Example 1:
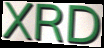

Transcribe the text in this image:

XRD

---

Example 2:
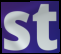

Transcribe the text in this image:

st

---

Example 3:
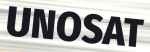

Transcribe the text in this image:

UNOSAT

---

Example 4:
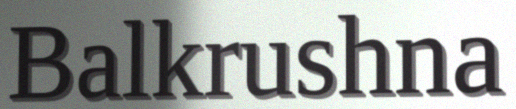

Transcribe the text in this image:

Balkrushna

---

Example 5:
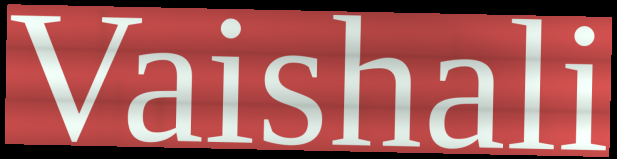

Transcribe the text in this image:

Vaishali